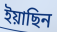
ইয়াছিন